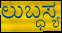
ಲುಬ್ಧಸ್ಯ